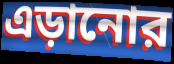
এড়ানোর